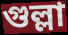
গুল্লা